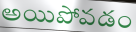
అయిపోవడం